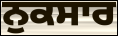
ਨੁਕਸਾਰ